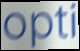
opti